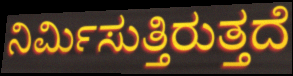
ನಿರ್ಮಿಸುತ್ತಿರುತ್ತದೆ